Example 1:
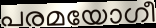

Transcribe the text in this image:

പരമയോഗീ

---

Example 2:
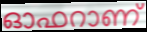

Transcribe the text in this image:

ഓഫറാണ്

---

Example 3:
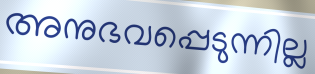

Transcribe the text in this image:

അനുഭവപ്പെടുന്നില്ല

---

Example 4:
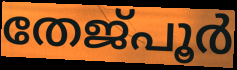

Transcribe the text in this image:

തേജ്പൂർ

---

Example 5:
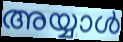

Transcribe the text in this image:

അയ്യാൾ